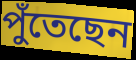
পুঁতেছেন